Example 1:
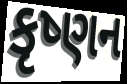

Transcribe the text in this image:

કૃષ્ણન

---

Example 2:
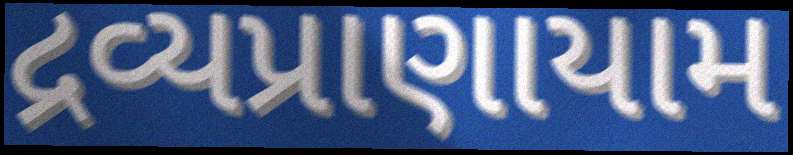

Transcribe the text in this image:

દ્રવ્યપ્રાણાયામ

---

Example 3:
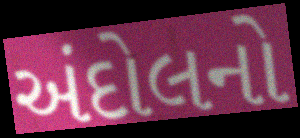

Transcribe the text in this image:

અંદોલનો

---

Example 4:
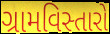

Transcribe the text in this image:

ગ્રામવિસ્તારો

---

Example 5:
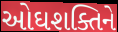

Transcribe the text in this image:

ઓઘશક્તિને